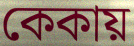
কেকায়